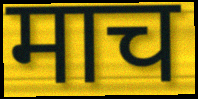
माच